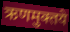
ऋणमुक्तये